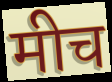
मीच